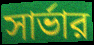
সার্ভার